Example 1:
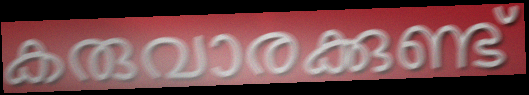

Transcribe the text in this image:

കരുവാരക്കുണ്ട്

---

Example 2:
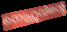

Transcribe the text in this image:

നെഹ്രുവിന്റെ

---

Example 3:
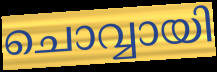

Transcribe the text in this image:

ചൊവ്വായി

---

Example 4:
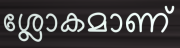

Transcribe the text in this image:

ശ്ലോകമാണ്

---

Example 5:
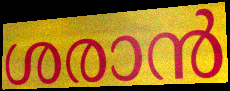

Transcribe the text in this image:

ശരാൻ